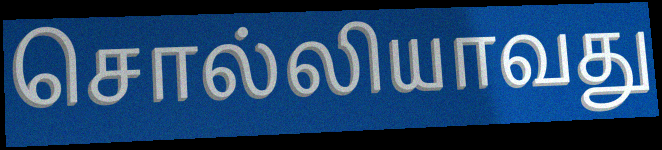
சொல்லியாவது